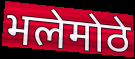
भलेमोठे